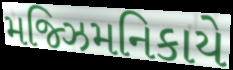
મજ્ઝિમનિકાયે